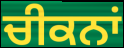
ਚੀਕਨਾਂ